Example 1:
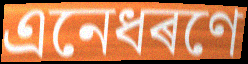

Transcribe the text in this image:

এনেধৰণে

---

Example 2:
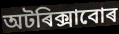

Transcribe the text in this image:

অটৰিক্সাবোৰ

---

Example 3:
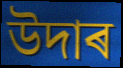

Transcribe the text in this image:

উদাৰ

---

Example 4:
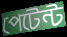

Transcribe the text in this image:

পেটেন্ট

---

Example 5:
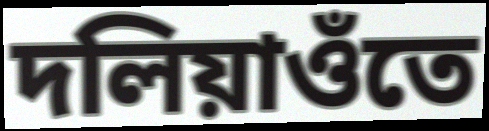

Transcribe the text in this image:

দলিয়াওঁতে